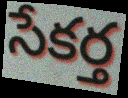
సేకర్త